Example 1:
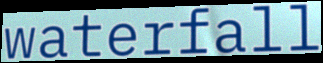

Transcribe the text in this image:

waterfall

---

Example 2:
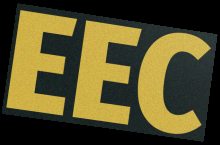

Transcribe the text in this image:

EEC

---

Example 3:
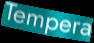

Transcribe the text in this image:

Tempera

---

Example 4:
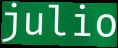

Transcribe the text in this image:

julio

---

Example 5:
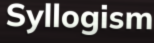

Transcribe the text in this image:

Syllogism